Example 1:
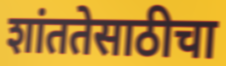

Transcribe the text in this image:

शांततेसाठीचा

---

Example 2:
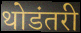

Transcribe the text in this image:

थोडंतरी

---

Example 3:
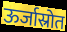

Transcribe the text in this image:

ऊर्जास्रोत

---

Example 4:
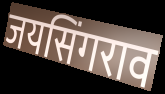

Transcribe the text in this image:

जयसिंगराव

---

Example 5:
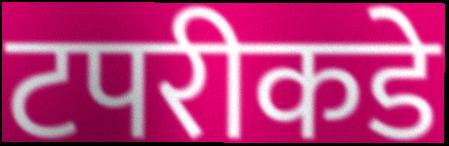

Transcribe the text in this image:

टपरीकडे